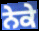
ਨੇਕੇ